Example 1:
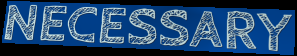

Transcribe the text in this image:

NECESSARY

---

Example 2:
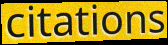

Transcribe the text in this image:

citations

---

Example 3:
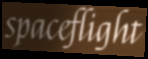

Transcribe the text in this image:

spaceflight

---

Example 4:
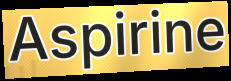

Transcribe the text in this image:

Aspirine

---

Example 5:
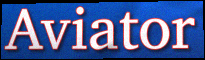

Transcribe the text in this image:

Aviator